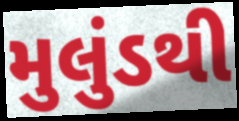
મુલુંડથી